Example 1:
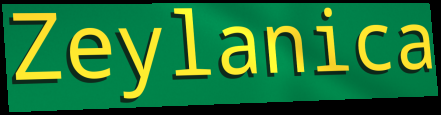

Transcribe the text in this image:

Zeylanica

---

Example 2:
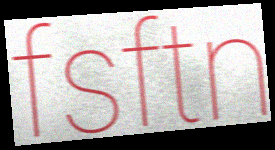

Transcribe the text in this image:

fsftn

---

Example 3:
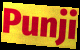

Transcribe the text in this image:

Punji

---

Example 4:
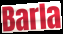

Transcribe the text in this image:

Barla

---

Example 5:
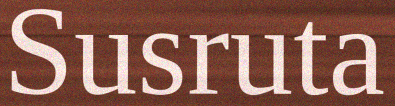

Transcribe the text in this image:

Susruta